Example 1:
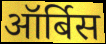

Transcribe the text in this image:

ऑर्बिस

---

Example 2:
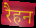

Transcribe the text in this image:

रैहन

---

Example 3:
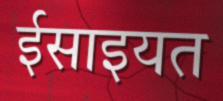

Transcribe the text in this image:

ईसाइयत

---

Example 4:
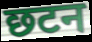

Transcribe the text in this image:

छटन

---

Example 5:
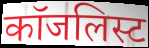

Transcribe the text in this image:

कॉजलिस्ट